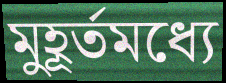
মুহূর্তমধ্যে